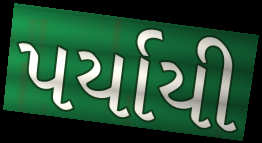
પર્યાયી